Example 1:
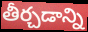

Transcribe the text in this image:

తీర్చడాన్ని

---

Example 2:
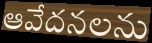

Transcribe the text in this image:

ఆవేదనలను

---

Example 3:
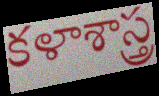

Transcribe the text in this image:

కళాశాస్త్ర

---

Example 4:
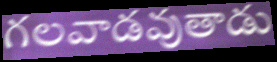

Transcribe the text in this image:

గలవాడవుతాడు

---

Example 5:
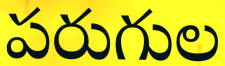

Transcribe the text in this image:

పరుగుల